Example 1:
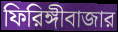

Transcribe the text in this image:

ফিরিঙ্গীবাজার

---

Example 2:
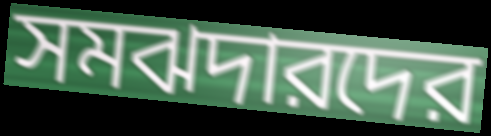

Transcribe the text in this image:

সমঝদারদের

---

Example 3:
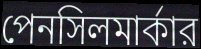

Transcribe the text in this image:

পেনসিলমার্কার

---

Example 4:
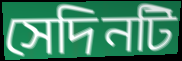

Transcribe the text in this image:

সেদিনটি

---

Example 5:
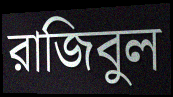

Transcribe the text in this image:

রাজিবুল